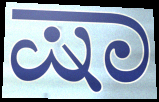
ಷಾ